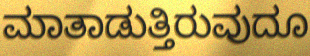
ಮಾತಾಡುತ್ತಿರುವುದೂ